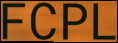
FCPL